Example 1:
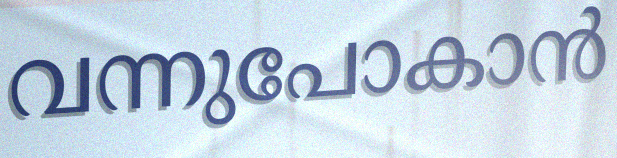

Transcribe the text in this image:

വന്നുപോകാൻ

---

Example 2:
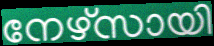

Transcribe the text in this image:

നേഴ്സായി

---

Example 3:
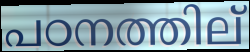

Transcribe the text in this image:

പഠനത്തില്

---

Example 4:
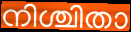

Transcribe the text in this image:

നിശ്ചിതാ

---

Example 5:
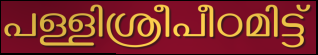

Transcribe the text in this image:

പള്ളിശ്രീപീഠമിട്ട്